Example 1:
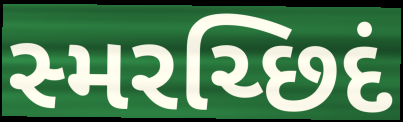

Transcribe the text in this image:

સ્મરચ્છિદં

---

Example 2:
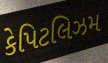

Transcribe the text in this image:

કેપિટલિઝમ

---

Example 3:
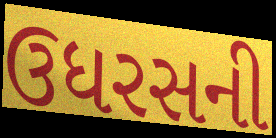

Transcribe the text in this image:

ઉધરસની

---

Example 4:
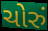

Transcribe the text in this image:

ચોરું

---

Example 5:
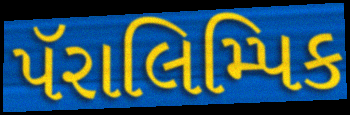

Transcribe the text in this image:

પૅરાલિમ્પિક